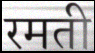
रमती